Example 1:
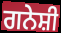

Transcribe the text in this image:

ਗਨੇਸ਼ੀ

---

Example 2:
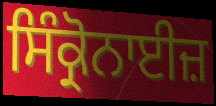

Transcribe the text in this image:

ਸਿੰਕ੍ਰੋਨਾਈਜ਼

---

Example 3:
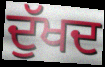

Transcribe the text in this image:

ਦੁੱਖਦ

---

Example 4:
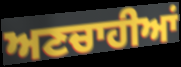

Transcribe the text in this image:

ਅਣਚਾਹੀਆਂ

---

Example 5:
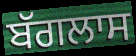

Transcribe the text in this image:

ਬੱਗਲਾਸ